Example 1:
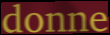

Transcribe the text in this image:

donne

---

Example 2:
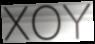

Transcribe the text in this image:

XOY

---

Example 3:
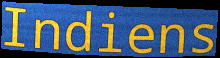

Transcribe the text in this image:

Indiens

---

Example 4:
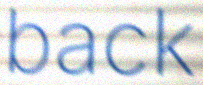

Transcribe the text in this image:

back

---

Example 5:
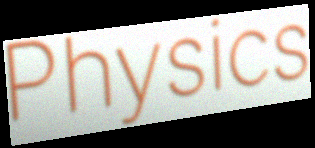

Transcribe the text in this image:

Physics